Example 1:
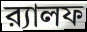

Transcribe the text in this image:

র‍্যালফ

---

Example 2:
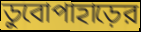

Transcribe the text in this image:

ডুবোপাহাড়ের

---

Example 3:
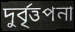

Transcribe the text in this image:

দুর্বৃত্তপনা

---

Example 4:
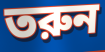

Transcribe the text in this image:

তরুন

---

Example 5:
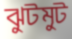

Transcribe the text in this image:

ঝুটমুট